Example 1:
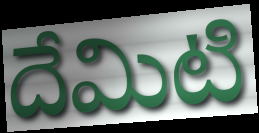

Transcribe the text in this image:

దేమిటి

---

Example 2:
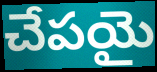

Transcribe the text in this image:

చేపయై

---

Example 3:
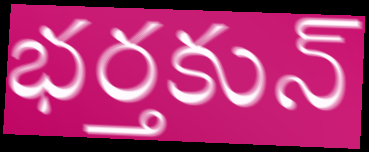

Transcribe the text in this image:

భర్తకున్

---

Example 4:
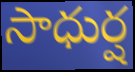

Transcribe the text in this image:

సాధుర్ష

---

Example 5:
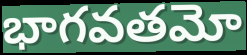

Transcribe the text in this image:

భాగవతమో